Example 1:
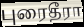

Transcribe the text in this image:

புரைதீரா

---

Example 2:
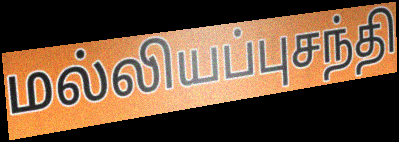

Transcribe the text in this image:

மல்லியப்புசந்தி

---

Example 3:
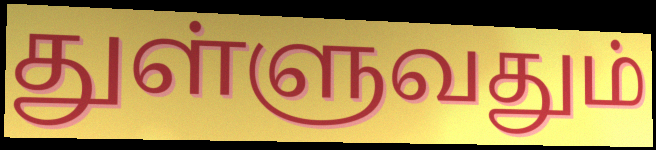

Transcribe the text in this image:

துள்ளுவதும்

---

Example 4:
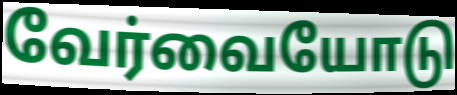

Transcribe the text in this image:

வேர்வையோடு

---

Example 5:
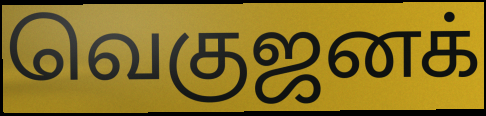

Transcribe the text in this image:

வெகுஜனக்